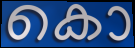
കൊ